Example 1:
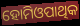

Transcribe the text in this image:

ହୋମିଓପାଥିକ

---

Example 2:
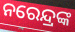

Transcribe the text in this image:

ନରେନ୍ଦ୍ରଙ୍କ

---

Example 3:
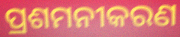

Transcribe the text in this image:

ପ୍ରଶମନୀକରଣ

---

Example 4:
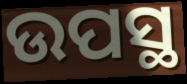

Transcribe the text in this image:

ଉପସ୍ଥ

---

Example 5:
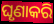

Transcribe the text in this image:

ଘୃଣାକରି